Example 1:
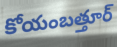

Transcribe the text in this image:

కోయంబత్తూర్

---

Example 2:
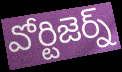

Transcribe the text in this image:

వోర్టిజెర్న్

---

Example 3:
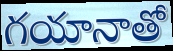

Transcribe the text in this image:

గయానాతో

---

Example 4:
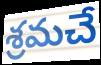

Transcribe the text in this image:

శ్రమచే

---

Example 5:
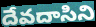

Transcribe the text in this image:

దేవదాసిని